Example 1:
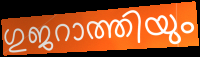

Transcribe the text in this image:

ഗുജറാത്തിയും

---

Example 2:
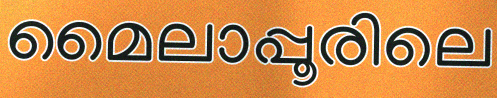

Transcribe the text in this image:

മൈലാപ്പൂരിലെ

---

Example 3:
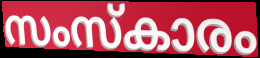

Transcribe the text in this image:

സംസ്കാരം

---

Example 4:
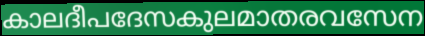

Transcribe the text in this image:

കാലദീപദേസകുലമാതരവസേന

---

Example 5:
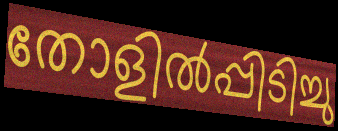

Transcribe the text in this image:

തോളിൽപ്പിടിച്ചു